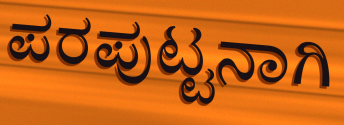
ಪರಪುಟ್ಟನಾಗಿ